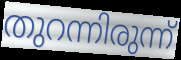
തുറന്നിരുന്ന്